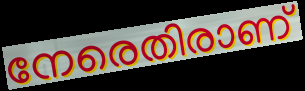
നേരെതിരാണ്